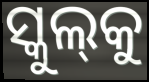
ସ୍କୁଲ୍‌କୁ